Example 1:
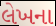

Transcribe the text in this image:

લેખના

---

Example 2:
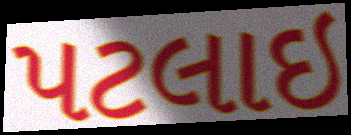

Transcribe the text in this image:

પટલાઇ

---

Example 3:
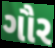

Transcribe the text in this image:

ગૌર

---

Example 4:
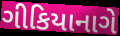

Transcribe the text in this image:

ગીકિયાનાગે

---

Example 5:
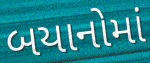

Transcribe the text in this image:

બયાનોમાં